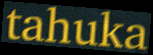
tahuka